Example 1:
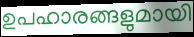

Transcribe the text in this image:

ഉപഹാരങ്ങളുമായി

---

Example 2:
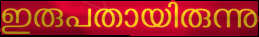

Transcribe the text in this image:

ഇരുപതായിരുന്നു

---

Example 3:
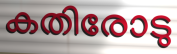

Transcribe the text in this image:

കതിരോടു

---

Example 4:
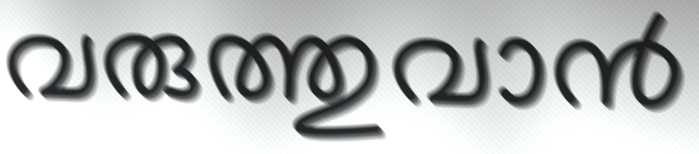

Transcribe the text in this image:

വരുത്തുവാൻ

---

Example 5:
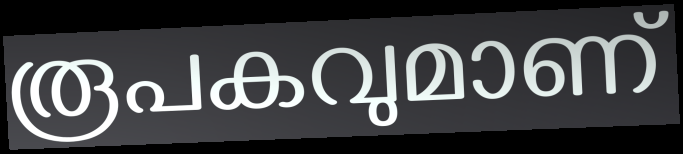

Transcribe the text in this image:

രൂപകവുമാണ്